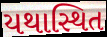
યથાસ્થિત